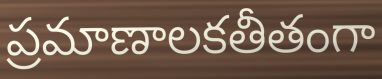
ప్రమాణాలకతీతంగా